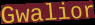
Gwalior